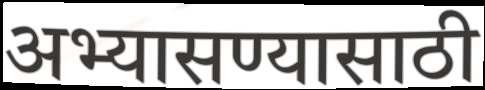
अभ्यासण्यासाठी